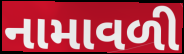
નામાવળી